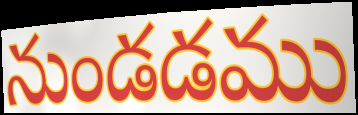
నుండడము